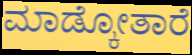
ಮಾಡ್ಕೋತಾರೆ